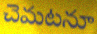
చెమటనూ